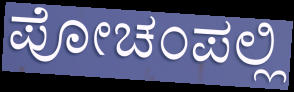
ಪೋಚಂಪಲ್ಲಿ